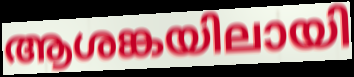
ആശങ്കയിലായി